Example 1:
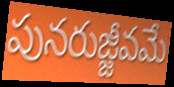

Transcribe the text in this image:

పునరుజ్జీవమే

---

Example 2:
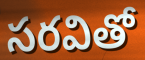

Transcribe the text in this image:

సరవితో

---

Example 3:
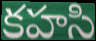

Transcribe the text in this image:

కహసి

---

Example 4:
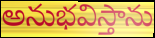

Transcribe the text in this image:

అనుభవిస్తాను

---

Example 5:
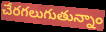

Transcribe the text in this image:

చేరగలుగుతున్నాం